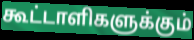
கூட்டாளிகளுக்கும்